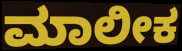
ಮಾಲೀಕ